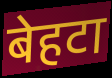
बेहटा